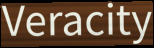
Veracity